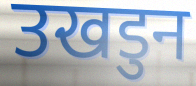
उखडुन